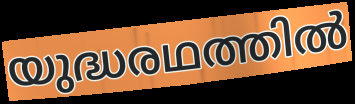
യുദ്ധരഥത്തിൽ